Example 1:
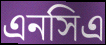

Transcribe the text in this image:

এনসিএ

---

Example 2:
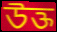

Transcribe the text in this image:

উক্ত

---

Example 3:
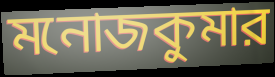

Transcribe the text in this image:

মনোজকুমার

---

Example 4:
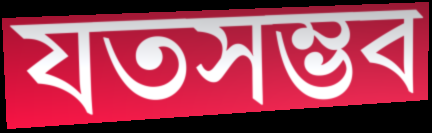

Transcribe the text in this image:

যতসম্ভব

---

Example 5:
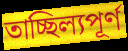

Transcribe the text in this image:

তাচ্ছিল্যপূর্ণ